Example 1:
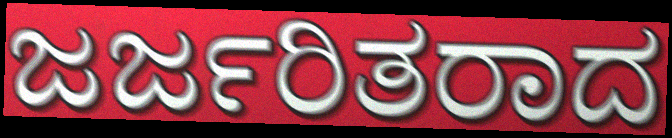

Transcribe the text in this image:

ಜರ್ಜರಿತರಾದ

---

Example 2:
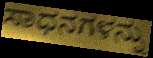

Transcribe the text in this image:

ಸಾಧನಗಳನ್ನು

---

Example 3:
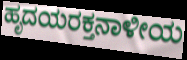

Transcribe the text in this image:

ಹೃದಯರಕ್ತನಾಳೀಯ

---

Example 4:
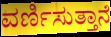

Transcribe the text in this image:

ವರ್ಣಿಸುತ್ತಾನೆ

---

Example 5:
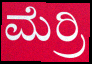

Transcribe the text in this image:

ಮೆರ್ರಿ